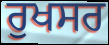
ਰੁਖਸਰ